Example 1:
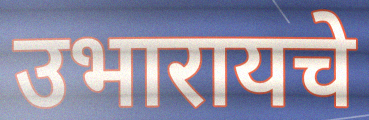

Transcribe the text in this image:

उभारायचे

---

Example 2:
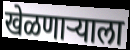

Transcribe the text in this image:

खेळणाऱ्याला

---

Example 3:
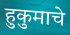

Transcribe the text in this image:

हुकुमाचे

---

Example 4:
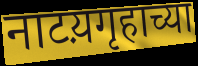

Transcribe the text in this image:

नाटय़गृहाच्या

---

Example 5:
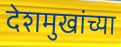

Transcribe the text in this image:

देशमुखांच्या